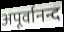
अपूर्वानन्द